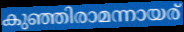
കുഞ്ഞിരാമന്നായര്